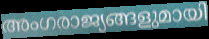
അംഗരാജ്യങ്ങളുമായി